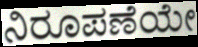
ನಿರೂಪಣೆಯೇ